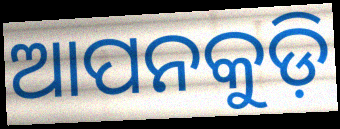
ଆପନକୁଡ଼ି